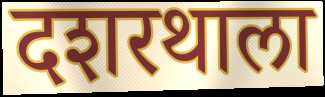
दशरथाला